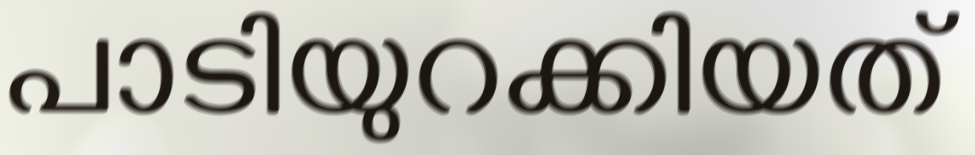
പാടിയുറക്കിയത്